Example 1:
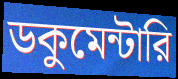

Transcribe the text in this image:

ডকুমেন্টারি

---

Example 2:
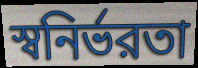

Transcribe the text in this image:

স্বনির্ভরতা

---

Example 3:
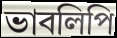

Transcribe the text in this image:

ভাবলিপি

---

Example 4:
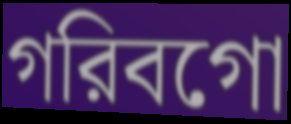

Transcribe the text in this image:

গরিবগো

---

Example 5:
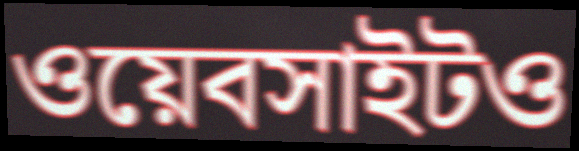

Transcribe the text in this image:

ওয়েবসাইটও